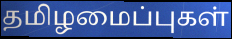
தமிழமைப்புகள்